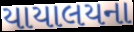
યાયાલયના